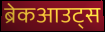
ब्रेकआउट्स